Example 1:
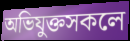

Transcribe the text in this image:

অভিযুক্তসকলে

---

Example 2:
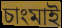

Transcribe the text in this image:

চাংমাই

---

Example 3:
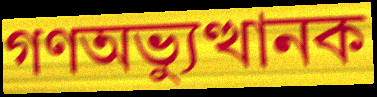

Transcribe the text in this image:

গণঅভ্যুত্থানক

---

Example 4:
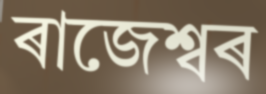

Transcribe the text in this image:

ৰাজেশ্বৰ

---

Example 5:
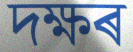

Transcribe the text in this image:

দক্ষৰ